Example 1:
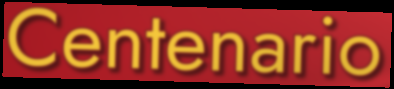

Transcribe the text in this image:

Centenario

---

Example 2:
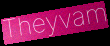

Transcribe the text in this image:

Theyvam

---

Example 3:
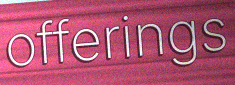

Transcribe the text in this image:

offerings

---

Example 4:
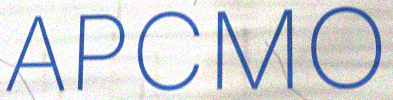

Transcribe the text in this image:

APCMO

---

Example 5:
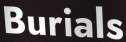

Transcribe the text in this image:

Burials